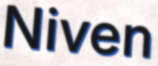
Niven